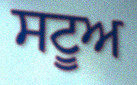
ਸਟੂਅ